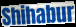
Shihabur